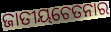
ଜାତୀୟଚେତନାର